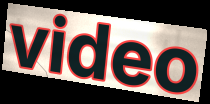
video